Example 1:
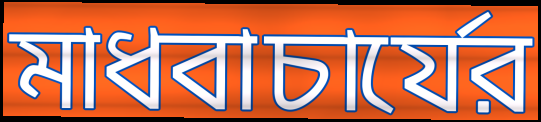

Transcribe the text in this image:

মাধবাচার্যের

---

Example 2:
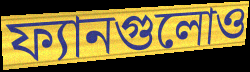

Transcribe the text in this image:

ফ্যানগুলোও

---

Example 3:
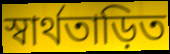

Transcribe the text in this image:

স্বার্থতাড়িত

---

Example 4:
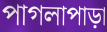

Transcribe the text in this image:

পাগলাপাড়া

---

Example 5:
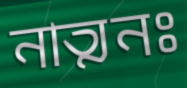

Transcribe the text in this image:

নাত্মনঃ